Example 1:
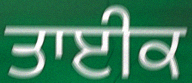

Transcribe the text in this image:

ਤਾਈਕ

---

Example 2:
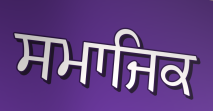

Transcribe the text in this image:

ਸਮਾਜਿਕ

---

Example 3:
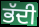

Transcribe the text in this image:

ਭੱਦੀ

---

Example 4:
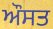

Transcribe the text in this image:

ਔਸਤ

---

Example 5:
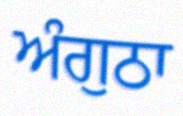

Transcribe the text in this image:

ਅੰਗੁਠਾ